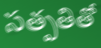
సత్పతితో